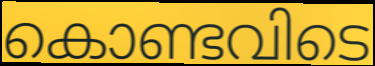
കൊണ്ടവിടെ